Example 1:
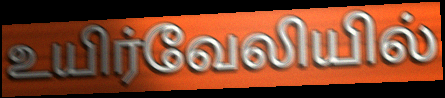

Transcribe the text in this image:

உயிர்வேலியில்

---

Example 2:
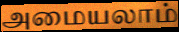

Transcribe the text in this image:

அமையலாம்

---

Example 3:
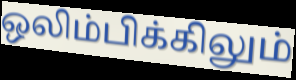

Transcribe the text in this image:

ஒலிம்பிக்கிலும்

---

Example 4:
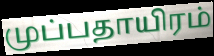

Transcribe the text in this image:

முப்பதாயிரம்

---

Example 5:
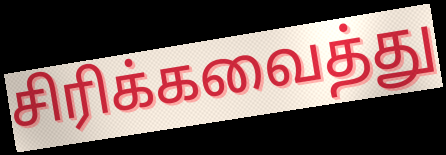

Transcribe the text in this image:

சிரிக்கவைத்து